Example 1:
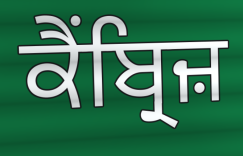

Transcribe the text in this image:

ਕੈਂਬ੍ਰਿਜ਼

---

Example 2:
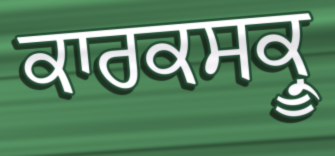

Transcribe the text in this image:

ਕਾਰਕਸਕ੍ਰੂ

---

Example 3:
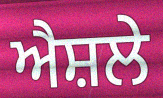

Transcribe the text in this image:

ਐਸ਼ਲੇ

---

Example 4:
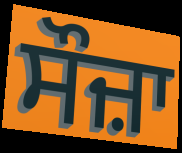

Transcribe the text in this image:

ਸੌਜ਼ਾ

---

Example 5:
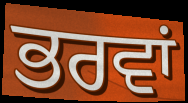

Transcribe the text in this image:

ਭਰਵਾਂ